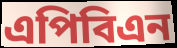
এপিবিএন